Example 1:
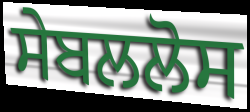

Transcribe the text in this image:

ਸੇਬਲਲੋਸ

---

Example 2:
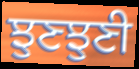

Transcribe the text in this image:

ਝੁਣਝੁਣੀ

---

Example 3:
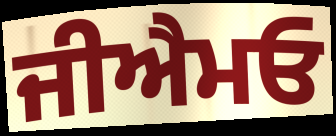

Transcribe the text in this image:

ਜੀਐਮਓ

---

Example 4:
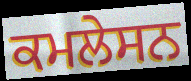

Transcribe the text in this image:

ਕਮਲੇਸਨ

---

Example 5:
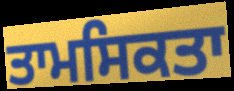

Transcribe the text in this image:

ਤਾਮਸਿਕਤਾ